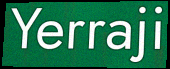
Yerraji